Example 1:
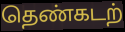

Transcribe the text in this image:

தெண்கடற்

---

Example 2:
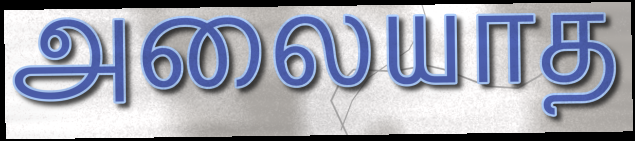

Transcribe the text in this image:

அலையாத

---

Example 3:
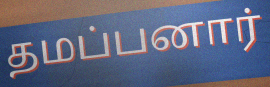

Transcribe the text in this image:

தமப்பனார்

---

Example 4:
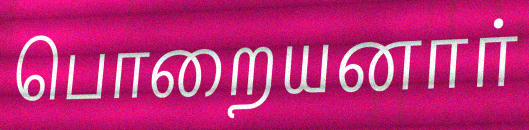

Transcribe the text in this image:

பொறையனார்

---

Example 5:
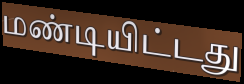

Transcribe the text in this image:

மண்டியிட்டது